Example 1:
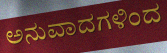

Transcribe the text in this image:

ಅನುವಾದಗಳಿಂದ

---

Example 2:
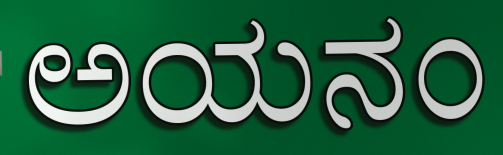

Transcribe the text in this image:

ಅಯನಂ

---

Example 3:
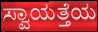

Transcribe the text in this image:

ಸ್ವಾಯತ್ತೆಯ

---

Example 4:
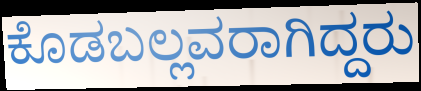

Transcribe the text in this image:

ಕೊಡಬಲ್ಲವರಾಗಿದ್ದರು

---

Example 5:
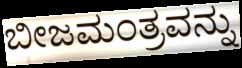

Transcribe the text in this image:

ಬೀಜಮಂತ್ರವನ್ನು